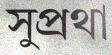
সুপ্রথা